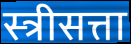
स्त्रीसत्ता